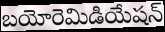
బయోరెమిడియేషన్